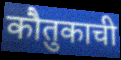
कौतुकाची